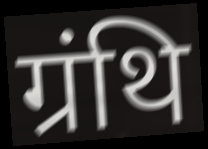
ग्रंथि